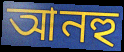
আনহু